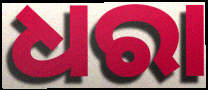
ଧରା